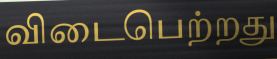
விடைபெற்றது